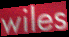
wiles